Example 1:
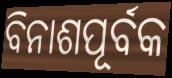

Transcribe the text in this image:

ବିନାଶପୂର୍ବକ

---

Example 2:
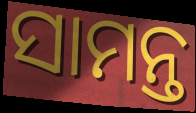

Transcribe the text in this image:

ସାମନ୍ତ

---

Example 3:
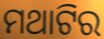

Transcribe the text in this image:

ମଥାଟିର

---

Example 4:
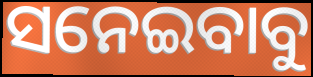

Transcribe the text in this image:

ସନେଇବାବୁ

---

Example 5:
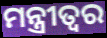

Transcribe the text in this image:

ମନ୍ତ୍ରୀତ୍ୱର